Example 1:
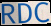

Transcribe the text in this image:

RDC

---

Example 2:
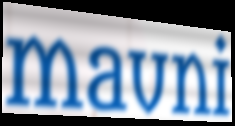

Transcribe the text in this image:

mauni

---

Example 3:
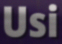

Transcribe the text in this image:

Usi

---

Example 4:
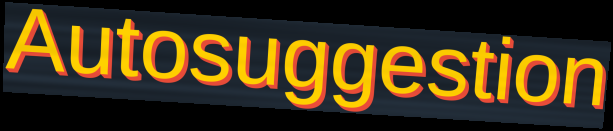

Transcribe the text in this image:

Autosuggestion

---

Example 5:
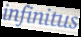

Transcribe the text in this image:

infinitus